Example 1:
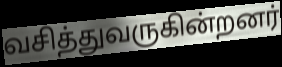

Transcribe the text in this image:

வசித்துவருகின்றனர்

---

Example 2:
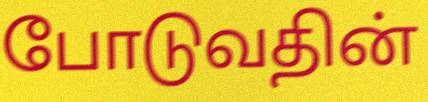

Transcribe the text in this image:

போடுவதின்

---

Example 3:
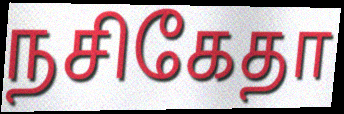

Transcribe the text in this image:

நசிகேதா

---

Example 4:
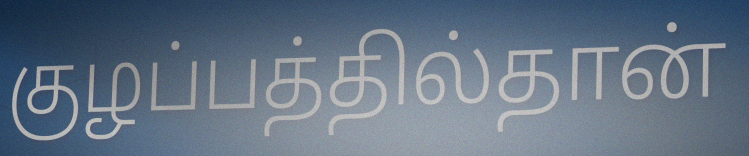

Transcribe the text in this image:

குழப்பத்தில்தான்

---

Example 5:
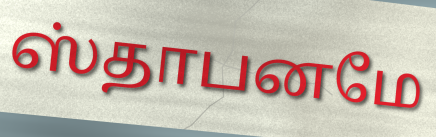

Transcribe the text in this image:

ஸ்தாபனமே